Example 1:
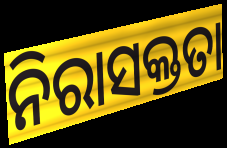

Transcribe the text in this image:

ନିରାସକ୍ତତା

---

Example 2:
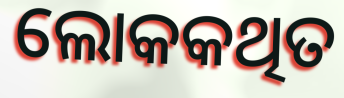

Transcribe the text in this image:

ଲୋକକଥିତ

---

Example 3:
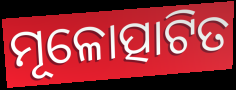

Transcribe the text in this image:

ମୂଳୋତ୍ପାଟିତ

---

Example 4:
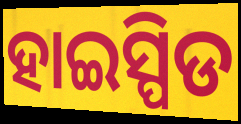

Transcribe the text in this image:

ହାଇସ୍ପିଡ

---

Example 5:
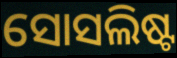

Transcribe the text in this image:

ସୋସଲିଷ୍ଟ